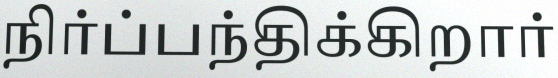
நிர்ப்பந்திக்கிறார்